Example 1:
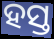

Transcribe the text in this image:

ହସ୍ତ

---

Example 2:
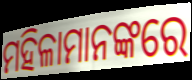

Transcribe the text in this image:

ମହିଳାମାନଙ୍କରେ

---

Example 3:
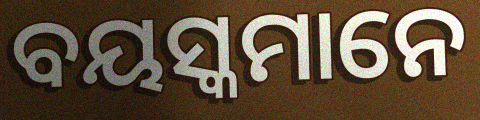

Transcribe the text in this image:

ବୟସ୍କମାନେ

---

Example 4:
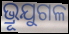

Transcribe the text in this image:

ଭ୍ରୂଯୁଗଳ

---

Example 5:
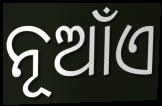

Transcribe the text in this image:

ନୂଆଁଏ